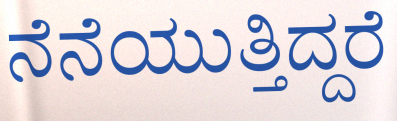
ನೆನೆಯುತ್ತಿದ್ದರೆ